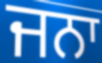
ਜਨਾ